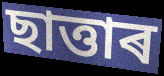
ছাত্তাৰ